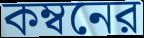
কম্বনের